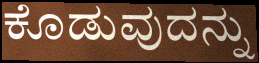
ಕೊಡುವುದನ್ನು